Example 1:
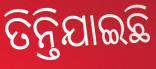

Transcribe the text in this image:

ତିନ୍ତିଯାଇଛି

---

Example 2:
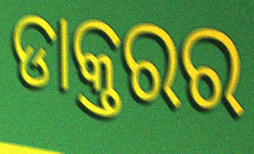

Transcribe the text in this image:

ଡାକ୍ତରର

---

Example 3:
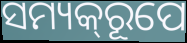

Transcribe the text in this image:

ସମ୍ୟକ୍‌ରୂପେ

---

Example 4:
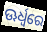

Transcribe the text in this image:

ଊର୍ଧ୍ୱରେ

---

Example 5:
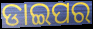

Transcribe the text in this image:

ଡାଇପର